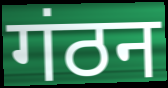
गंठन